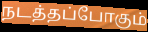
நடத்தப்போகும்